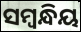
ସମ୍ଵନ୍ଧିୟ